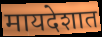
मायदेशात